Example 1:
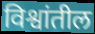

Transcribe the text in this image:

विश्वांतील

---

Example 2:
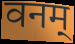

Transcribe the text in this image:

वनम्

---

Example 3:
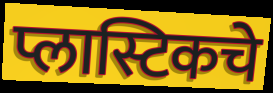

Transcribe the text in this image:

प्लास्टिकचे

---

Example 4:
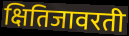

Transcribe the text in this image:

क्षितिजावरती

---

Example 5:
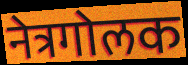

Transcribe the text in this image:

नेत्रगोलक